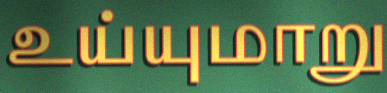
உய்யுமாறு